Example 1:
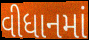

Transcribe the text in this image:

વીધાનમાં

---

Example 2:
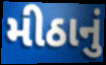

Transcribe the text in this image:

મીઠાનું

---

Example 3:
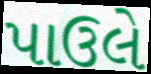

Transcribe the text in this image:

પાઉલે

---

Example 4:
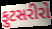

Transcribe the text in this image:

ફુટસરીરો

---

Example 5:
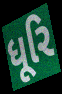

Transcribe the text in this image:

ધૂરિ